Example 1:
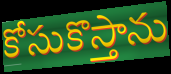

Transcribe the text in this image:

కోసుకొస్తాను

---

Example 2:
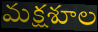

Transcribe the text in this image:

మక్షశూల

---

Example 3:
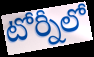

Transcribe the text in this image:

టోర్నీలో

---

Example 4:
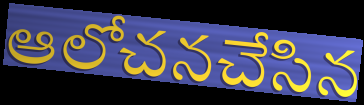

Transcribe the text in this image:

ఆలోచనచేసిన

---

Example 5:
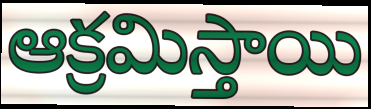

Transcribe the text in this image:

ఆక్రమిస్తాయి